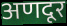
अणदूर